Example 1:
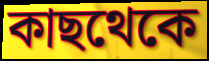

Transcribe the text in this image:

কাছথেকে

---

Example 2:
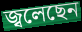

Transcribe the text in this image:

জ্বলেছেন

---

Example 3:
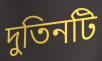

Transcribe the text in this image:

দুতিনটি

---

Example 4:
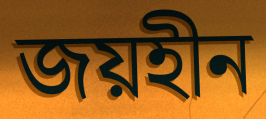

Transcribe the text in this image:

জয়হীন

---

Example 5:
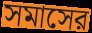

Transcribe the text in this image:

সমাসের